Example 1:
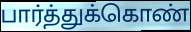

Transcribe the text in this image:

பார்த்துக்கொண்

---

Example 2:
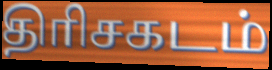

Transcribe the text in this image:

திரிசகடம்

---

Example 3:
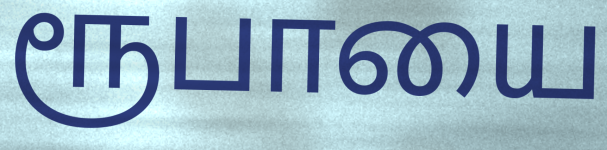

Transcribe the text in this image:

ரூபாயை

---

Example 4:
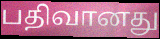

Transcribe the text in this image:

பதிவானது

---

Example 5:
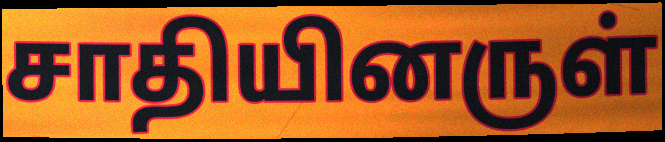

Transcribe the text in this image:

சாதியினருள்